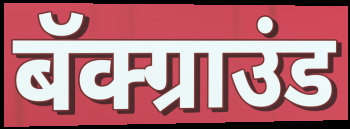
बॅक्ग्राउंड